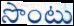
సొంటు